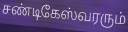
சண்டிகேஸ்வரரும்